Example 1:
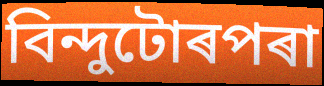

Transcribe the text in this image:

বিন্দুটোৰপৰা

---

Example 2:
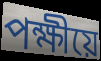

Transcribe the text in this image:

পক্ষীয়ে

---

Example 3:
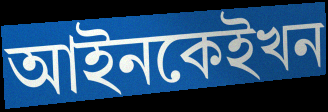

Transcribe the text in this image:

আইনকেইখন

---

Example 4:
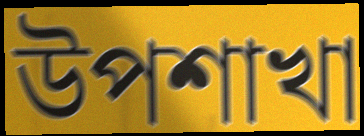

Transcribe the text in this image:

উপশাখা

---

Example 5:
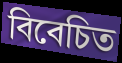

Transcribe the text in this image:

বিবেচিত